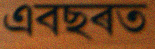
এবছৰত